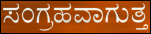
ಸಂಗ್ರಹವಾಗುತ್ತ